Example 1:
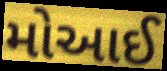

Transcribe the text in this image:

મોઆઈ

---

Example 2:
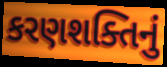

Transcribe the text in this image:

કરણશક્તિનું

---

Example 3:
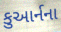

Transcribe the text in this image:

કુઆર્નના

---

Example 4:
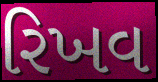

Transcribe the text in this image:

રિખવ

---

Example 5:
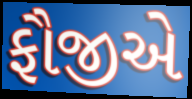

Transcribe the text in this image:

ફૌજીએ